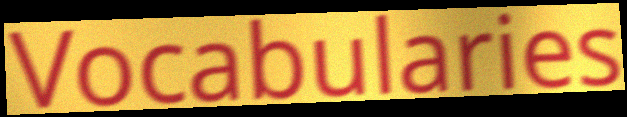
Vocabularies